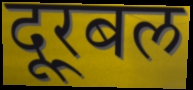
दूर्बल